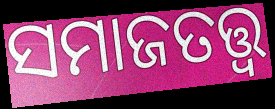
ସମାଜତତ୍ତ୍ୱ